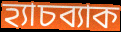
হ্যাচব্যাক